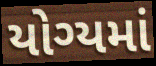
યોગ્યમાં